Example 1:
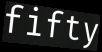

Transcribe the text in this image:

fifty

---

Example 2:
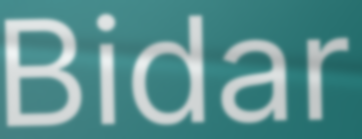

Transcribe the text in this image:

Bidar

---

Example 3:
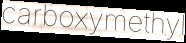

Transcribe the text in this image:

carboxymethyl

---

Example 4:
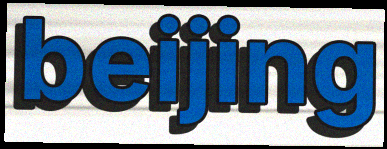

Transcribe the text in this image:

beijing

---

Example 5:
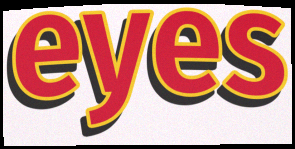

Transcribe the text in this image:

eyes